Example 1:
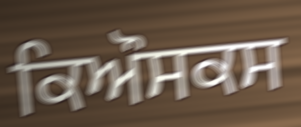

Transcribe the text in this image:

ਕਿਔਸਕਸ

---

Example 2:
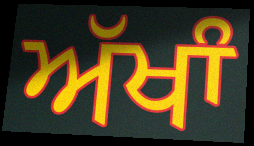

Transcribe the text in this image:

ਅੱਖਾੰ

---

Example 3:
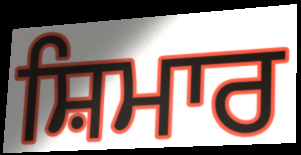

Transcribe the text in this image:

ਸ਼ਿਮਾਰ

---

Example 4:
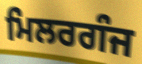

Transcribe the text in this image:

ਮਿਲਰਗੰਜ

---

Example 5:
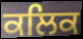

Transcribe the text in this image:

ਕਲਿਕ